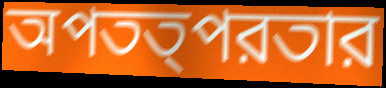
অপতত্পরতার